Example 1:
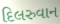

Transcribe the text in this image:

દિલરુવાન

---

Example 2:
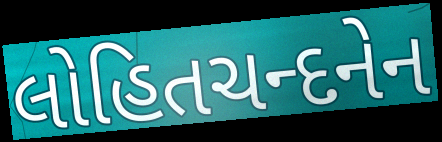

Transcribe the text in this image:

લોહિતચન્દનેન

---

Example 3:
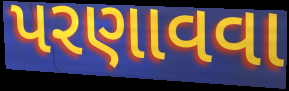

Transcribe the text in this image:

પરણાવવા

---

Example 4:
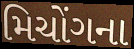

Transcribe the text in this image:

મિચોંગના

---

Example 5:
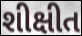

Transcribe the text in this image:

શીક્ષીત